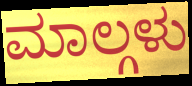
ಮಾಲ್ಗಳು